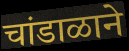
चांडाळाने